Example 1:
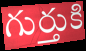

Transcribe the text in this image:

గుర్తుకి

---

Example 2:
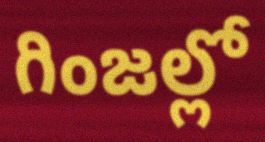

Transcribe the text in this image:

గింజల్లో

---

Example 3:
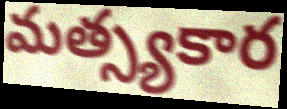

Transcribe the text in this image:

మత్స్యకార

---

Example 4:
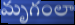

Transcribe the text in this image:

మృగంలా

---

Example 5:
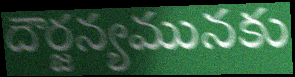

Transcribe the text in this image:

దౌర్జన్యమునకు